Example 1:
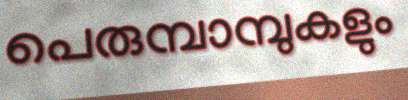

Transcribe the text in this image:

പെരുമ്പാമ്പുകളും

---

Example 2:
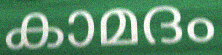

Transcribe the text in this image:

കാമദം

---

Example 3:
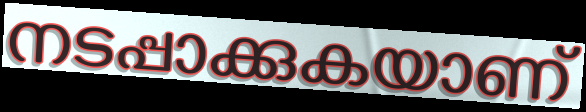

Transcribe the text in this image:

നടപ്പാക്കുകയാണ്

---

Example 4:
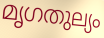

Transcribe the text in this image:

മൃഗതുല്യം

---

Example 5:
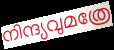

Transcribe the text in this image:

നിന്ദ്യവുമത്രേ